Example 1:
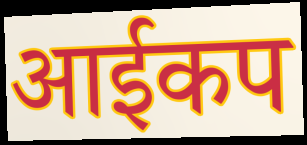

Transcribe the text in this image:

आईकप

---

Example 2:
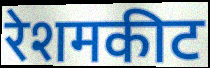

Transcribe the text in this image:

रेशमकीट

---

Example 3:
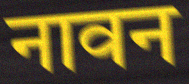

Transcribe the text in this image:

नावन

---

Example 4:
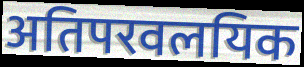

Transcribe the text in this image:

अतिपरवलयिक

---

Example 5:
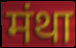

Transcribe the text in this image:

मंथा